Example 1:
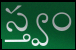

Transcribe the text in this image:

స్త్వం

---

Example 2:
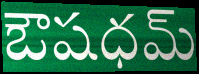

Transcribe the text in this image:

ఔషధమ్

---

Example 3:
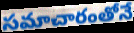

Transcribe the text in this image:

సమాచారంతోనే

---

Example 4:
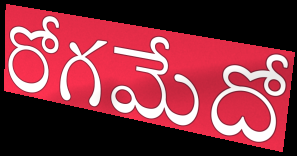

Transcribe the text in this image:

రోగమేదో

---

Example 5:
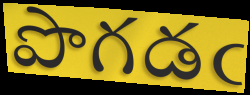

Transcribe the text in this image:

పొగడఁ